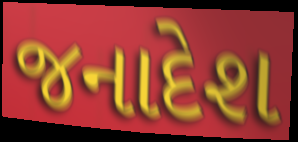
જનાદેશ